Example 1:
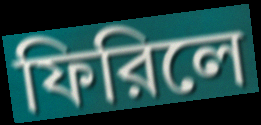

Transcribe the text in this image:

ফিরিলে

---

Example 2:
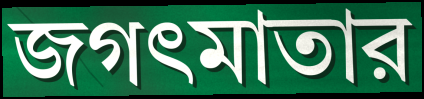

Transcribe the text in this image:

জগৎমাতার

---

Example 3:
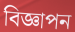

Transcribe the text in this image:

বিজ্ঞাপন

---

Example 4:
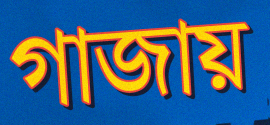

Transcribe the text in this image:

গাজায়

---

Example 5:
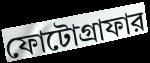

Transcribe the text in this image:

ফোটোগ্রাফার